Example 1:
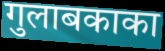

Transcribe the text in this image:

गुलाबकाका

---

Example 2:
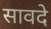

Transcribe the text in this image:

सावदे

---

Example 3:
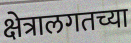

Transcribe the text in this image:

क्षेत्रालगतच्या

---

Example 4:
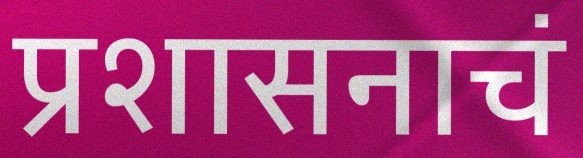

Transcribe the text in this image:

प्रशासनाचं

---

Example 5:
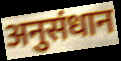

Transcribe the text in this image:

अनुसंधान